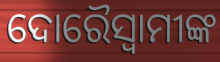
ଦୋରୈସ୍ବାମୀଙ୍କ